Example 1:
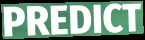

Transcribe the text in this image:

PREDICT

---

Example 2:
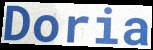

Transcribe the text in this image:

Doria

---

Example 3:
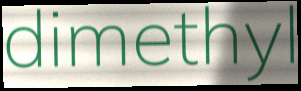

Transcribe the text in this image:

dimethyl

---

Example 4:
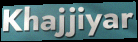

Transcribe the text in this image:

Khajjiyar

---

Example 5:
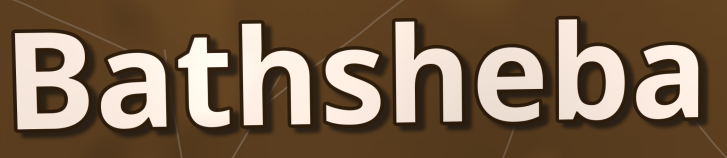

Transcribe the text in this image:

Bathsheba